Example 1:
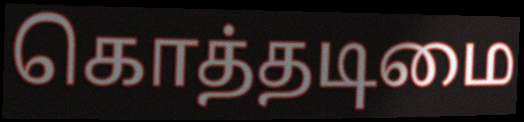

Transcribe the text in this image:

கொத்தடிமை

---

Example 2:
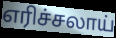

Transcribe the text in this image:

எரிச்சலாய்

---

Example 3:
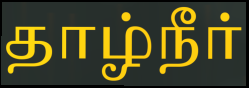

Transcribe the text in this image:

தாழ்நீர்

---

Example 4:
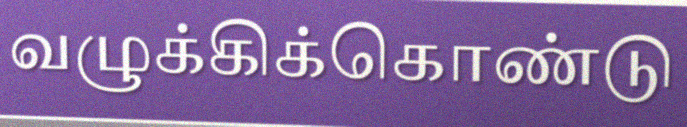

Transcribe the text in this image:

வழுக்கிக்கொண்டு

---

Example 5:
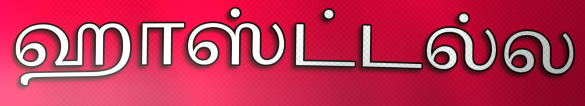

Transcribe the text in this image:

ஹாஸ்ட்டல்ல